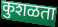
कुशळता